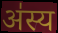
अ॑स्य